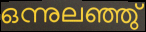
ഒന്നുലഞ്ഞു്